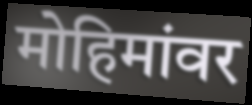
मोहिमांवर